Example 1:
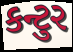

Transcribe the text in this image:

કન્ટુર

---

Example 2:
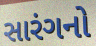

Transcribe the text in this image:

સારંગનો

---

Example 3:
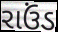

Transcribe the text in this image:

રાઉંડ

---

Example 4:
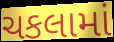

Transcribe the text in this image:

ચકલામાં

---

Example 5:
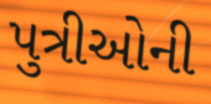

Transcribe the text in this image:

પુત્રીઓની